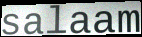
salaam